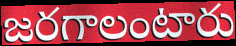
జరగాలంటారు